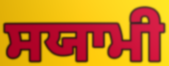
ਸਯਾਮੀ